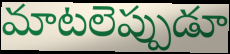
మాటలెప్పుడూ